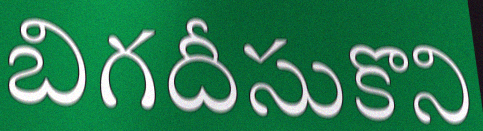
బిగదీసుకొని